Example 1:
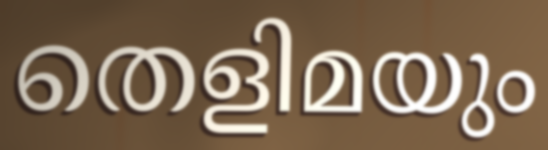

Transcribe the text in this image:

തെളിമയും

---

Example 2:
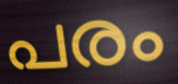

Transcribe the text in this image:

പരം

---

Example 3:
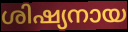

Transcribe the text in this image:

ശിഷ്യനായ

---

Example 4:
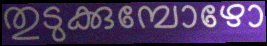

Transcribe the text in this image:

തുടുക്കുമ്പോഴോ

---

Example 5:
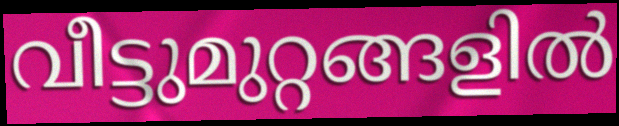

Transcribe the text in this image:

വീട്ടുമുറ്റങ്ങളിൽ